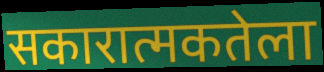
सकारात्मकतेला